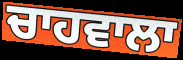
ਚਾਹਵਾਲਾ